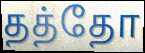
தத்தோ